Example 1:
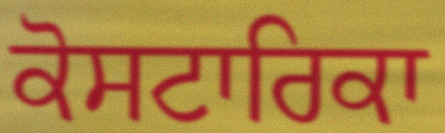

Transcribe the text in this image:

ਕੋਸਟਾਰਿਕਾ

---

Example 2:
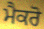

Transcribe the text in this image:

ਮੈਕਰੋ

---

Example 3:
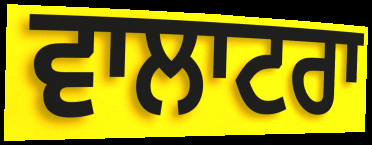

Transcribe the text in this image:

ਵਾਲਾਟਰਾ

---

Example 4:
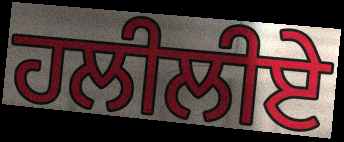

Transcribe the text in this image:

ਹਲੀਲੀਏ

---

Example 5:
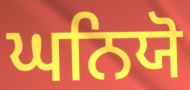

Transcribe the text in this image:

ਘਨਿਯੋ